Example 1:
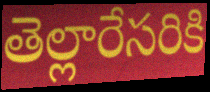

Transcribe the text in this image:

తెల్లారేసరికి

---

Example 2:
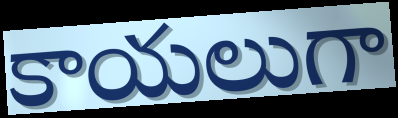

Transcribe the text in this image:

కాయలుగా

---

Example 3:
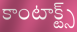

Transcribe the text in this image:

కాంటాక్ట్స్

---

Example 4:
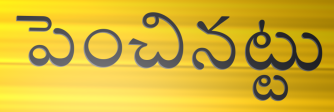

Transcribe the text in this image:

పెంచినట్టు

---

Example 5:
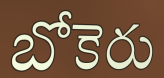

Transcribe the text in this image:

బోకెరు